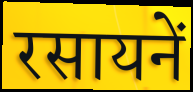
रसायनें